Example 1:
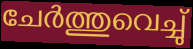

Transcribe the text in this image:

ചേർത്തുവെച്ചു്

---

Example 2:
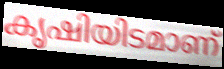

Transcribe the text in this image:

കൃഷിയിടമാണ്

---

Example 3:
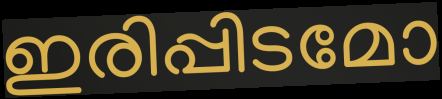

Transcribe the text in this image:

ഇരിപ്പിടമോ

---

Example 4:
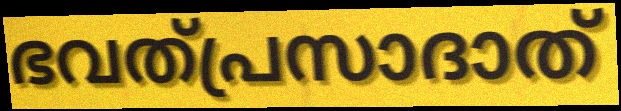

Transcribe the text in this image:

ഭവത്പ്രസാദാത്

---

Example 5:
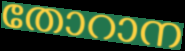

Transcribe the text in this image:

തോറാന